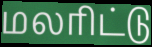
மலரிட்டு